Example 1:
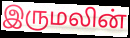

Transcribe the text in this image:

இருமலின்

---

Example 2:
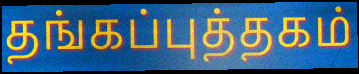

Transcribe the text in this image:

தங்கப்புத்தகம்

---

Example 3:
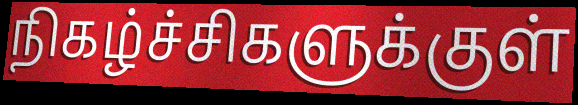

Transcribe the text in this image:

நிகழ்ச்சிகளுக்குள்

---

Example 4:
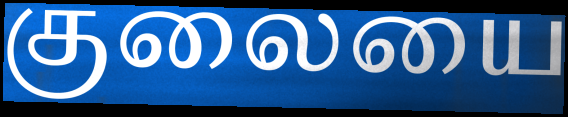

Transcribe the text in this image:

குலையை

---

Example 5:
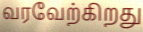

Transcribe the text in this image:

வரவேற்கிறது